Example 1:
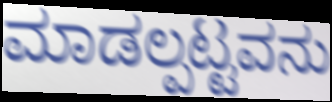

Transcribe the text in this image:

ಮಾಡಲ್ಪಟ್ಟವನು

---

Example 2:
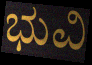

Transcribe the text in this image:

ಭುವಿ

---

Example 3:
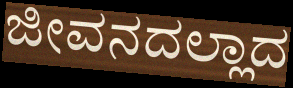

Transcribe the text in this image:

ಜೀವನದಲ್ಲಾದ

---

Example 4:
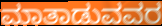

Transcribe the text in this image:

ಮಾತಾಡುವವರ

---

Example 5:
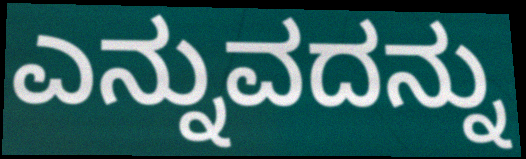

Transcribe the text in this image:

ಎನ್ನುವದನ್ನು